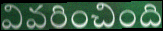
వివరించింది